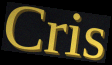
Cris